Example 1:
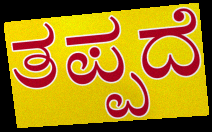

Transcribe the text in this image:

ತಪ್ಪದೆ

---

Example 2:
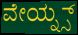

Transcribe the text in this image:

ವೇಯ್ನ್ಸ್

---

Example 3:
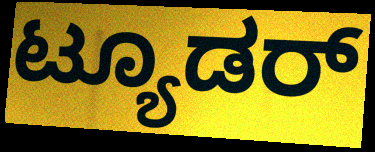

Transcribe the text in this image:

ಟ್ಯೂಡರ್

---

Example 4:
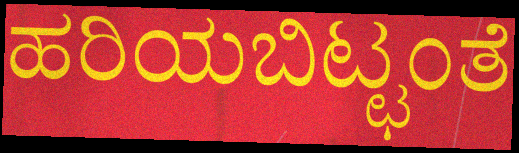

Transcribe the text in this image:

ಹರಿಯಬಿಟ್ಟಂತೆ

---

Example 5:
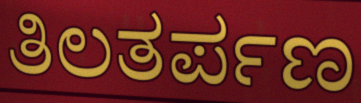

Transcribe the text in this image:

ತಿಲತರ್ಪಣ